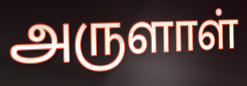
அருளாள்